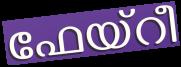
ഫേയ്റീ